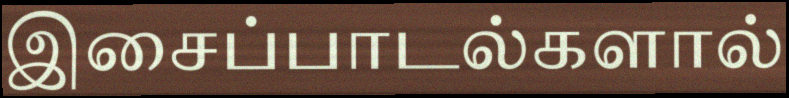
இசைப்பாடல்களால்